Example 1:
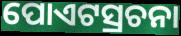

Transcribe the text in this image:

ପୋଏଟସ୍ରଚନା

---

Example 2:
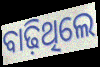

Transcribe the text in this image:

ବାଢ଼ିଥିଲେ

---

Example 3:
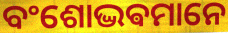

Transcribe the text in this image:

ବଂଶୋଦ୍ଭଵମାନେ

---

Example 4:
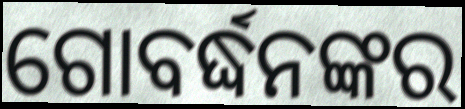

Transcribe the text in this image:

ଗୋବର୍ଦ୍ଧନଙ୍କର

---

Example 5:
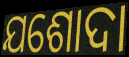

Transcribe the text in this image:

ଯଶୋଦା